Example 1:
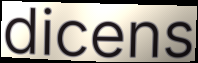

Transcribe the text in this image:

dicens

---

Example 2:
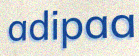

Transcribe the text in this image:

adipaa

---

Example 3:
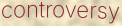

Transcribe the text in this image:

controversy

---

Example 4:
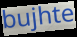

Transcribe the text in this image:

bujhte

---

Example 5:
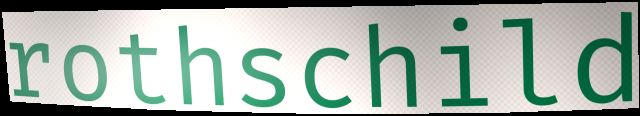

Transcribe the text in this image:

rothschild